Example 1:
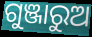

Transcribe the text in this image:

ଗୁଞ୍ଜାରୁଅ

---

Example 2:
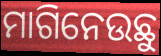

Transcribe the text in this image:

ମାଗିନେଉଛୁ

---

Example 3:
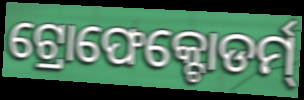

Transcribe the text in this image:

ଟ୍ରୋଫେକ୍ଟୋଡର୍ମ୍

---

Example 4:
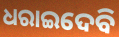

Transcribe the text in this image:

ଧରାଇଦେବି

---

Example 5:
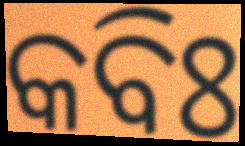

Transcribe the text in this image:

କବିଃ